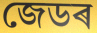
জেডৰ